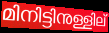
മിനിട്ടിനുള്ളില്